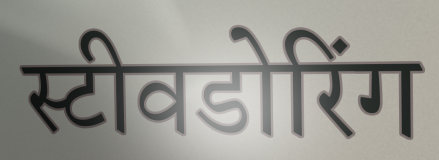
स्टीवडोरिंग